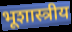
भूशास्त्रीय